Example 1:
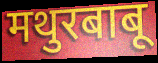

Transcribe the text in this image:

मथुरबाबू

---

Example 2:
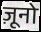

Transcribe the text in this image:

ज़ूनो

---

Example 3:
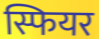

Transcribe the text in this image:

स्फियर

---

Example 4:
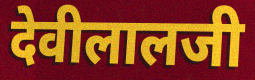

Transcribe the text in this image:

देवीलालजी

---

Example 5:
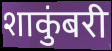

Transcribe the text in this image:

शाकुंबरी